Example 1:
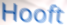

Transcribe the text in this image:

Hooft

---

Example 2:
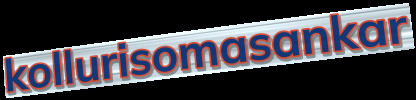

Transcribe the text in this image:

kollurisomasankar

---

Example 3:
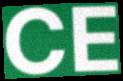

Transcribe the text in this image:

CE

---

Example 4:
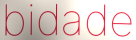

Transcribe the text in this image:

bidade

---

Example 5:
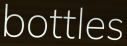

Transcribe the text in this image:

bottles